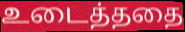
உடைத்ததை